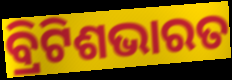
ବ୍ରିଟିଶଭାରତ